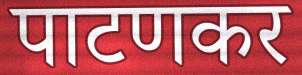
पाटणकर